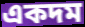
একদম